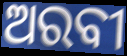
ଅରବୀ